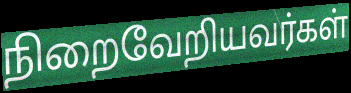
நிறைவேறியவர்கள்